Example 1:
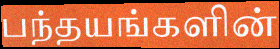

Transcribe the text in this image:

பந்தயங்களின்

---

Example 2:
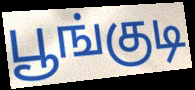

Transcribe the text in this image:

பூங்குடி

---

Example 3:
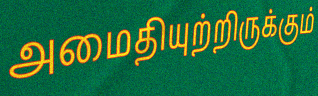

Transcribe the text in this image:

அமைதியுற்றிருக்கும்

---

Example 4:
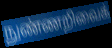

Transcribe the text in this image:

நுண்ணறிவைக்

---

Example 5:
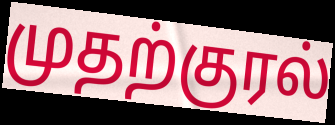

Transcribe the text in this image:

முதற்குரல்